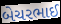
બેચરભાઈ